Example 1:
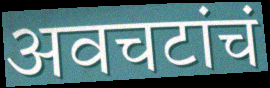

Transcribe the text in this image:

अवचटांचं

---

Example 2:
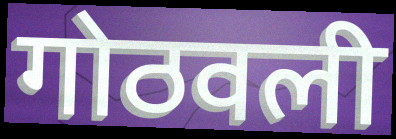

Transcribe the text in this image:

गोठवली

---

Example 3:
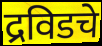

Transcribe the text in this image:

द्रविडचे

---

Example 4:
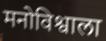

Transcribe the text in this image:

मनोविश्वाला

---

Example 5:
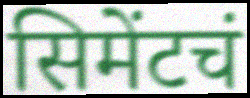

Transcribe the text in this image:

सिमेंटचं